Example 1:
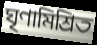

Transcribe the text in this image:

ঘৃণামিশ্রিত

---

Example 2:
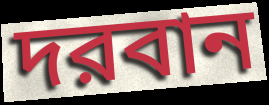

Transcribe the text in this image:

দরবান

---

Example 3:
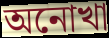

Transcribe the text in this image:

অনোখা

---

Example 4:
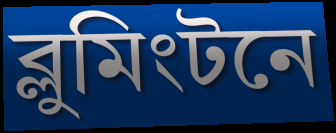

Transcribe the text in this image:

ব্লুমিংটনে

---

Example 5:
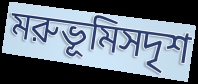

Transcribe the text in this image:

মরুভূমিসদৃশ